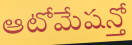
ఆటోమేషన్తో